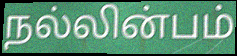
நல்லின்பம்